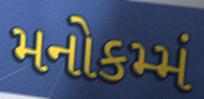
મનોકમ્મં